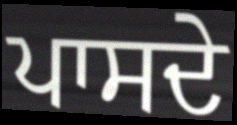
ਪਾਸਦੇ